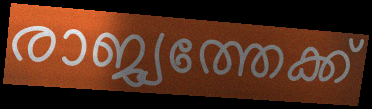
രാജ്യത്തേക്ക്